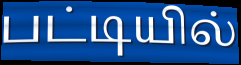
பட்டியில்